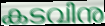
കടവിനു